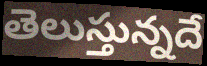
తెలుస్తున్నదే